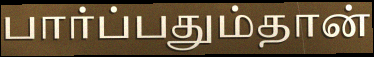
பார்ப்பதும்தான்